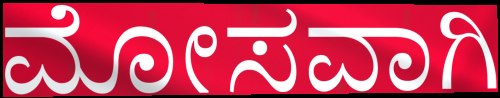
ಮೋಸವಾಗಿ